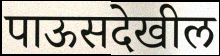
पाऊसदेखील